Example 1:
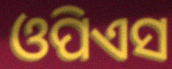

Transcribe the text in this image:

ଓପିଏସ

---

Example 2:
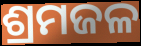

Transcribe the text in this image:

ଶ୍ରମଜଳ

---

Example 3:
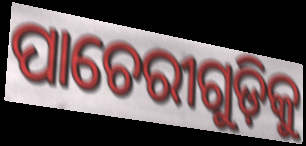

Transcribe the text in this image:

ପାଚେରୀଗୁଡ଼ିକୁ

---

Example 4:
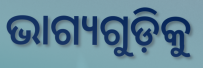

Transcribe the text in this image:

ଭାଗ୍ୟଗୁଡ଼ିକୁ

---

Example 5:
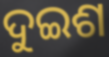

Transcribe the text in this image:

ଦୁଇଶ